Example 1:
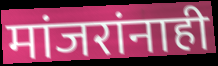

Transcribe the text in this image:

मांजरांनाही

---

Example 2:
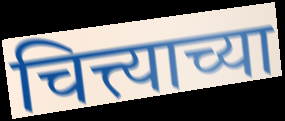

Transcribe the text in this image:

चित्त्याच्या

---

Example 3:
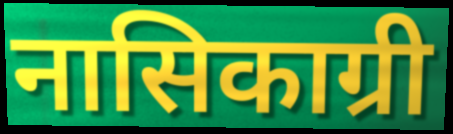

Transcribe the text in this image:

नासिकाग्री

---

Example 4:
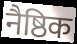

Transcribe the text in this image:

नैष्ठिक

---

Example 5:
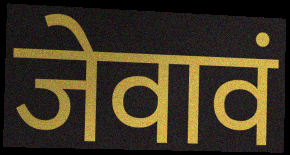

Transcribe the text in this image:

जेवावं